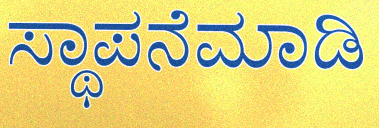
ಸ್ಥಾಪನೆಮಾಡಿ